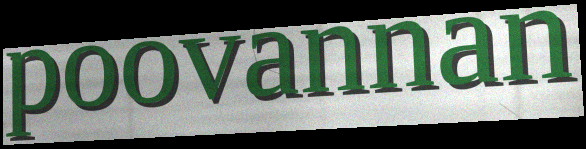
poovannan